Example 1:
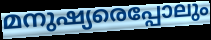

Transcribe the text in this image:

മനുഷ്യരെപ്പോലും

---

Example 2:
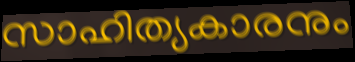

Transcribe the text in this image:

സാഹിത്യകാരനും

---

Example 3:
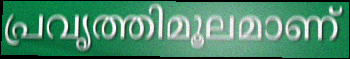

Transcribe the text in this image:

പ്രവൃത്തിമൂലമാണ്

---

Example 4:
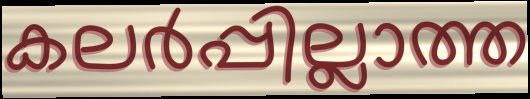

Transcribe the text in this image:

കലർപ്പില്ലാത്ത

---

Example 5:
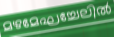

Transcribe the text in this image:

മഴമേഘച്ചേലിൽ